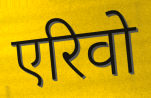
एरिवो